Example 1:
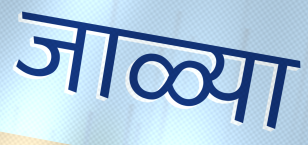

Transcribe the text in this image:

जाळ्या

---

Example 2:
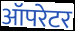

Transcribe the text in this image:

ऑपरेटर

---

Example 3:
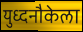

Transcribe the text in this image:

युध्दनौकेला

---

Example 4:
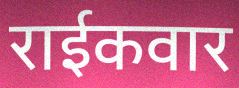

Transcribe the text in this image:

राईकवार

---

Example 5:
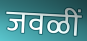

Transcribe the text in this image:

जवळीं